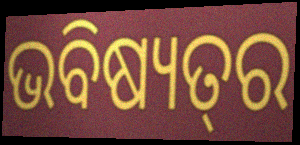
ଭବିଷ୍ୟତ୍‌ର